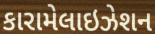
કારામેલાઇઝેશન